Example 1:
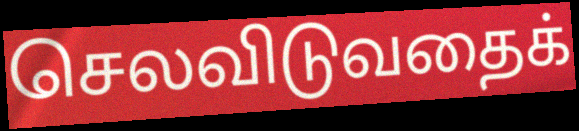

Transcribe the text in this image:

செலவிடுவதைக்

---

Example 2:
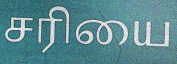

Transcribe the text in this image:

சரியை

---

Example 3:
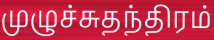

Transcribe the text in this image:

முழுச்சுதந்திரம்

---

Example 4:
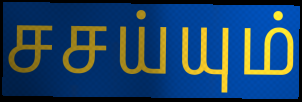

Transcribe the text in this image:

சசய்யும்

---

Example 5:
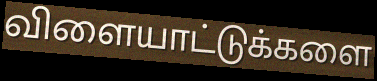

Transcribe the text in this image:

விளையாட்டுக்களை